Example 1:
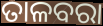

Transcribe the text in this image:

ତାଳବରା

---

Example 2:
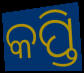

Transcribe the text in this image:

କପ୍ତି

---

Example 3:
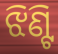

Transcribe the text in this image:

ଝିଣ୍ଟି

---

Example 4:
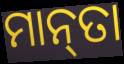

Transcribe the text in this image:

ମାନ୍‌ତା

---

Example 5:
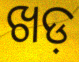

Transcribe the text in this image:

ଖଡ଼